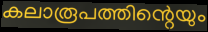
കലാരൂപത്തിന്റെയും